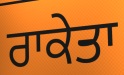
ਰਾਕੇਤਾ